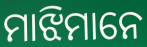
ମାଝିମାନେ